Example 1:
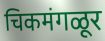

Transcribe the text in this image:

चिकमंगळूर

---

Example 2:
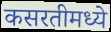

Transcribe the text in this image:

कसरतीमध्ये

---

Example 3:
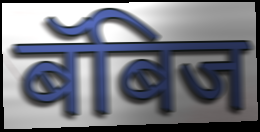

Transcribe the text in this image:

बॅबिज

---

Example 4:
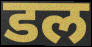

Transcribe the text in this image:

डल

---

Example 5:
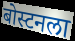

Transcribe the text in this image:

बोस्टनला